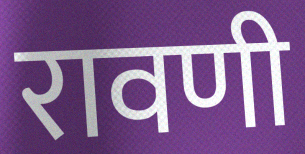
रावणी